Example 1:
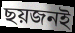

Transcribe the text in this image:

ছয়জনই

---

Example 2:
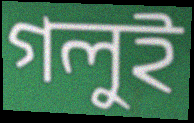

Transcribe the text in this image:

গলুই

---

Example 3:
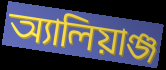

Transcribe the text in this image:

অ্যালিয়াঞ্জ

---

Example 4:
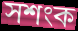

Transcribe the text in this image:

সশংক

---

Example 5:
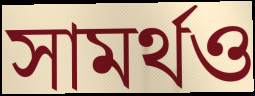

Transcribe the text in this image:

সামর্থও